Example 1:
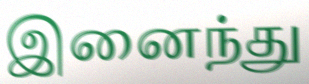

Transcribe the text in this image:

இனைந்து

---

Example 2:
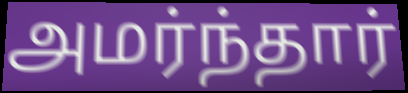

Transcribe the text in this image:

அமர்ந்தார்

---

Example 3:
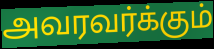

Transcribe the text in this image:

அவரவர்க்கும்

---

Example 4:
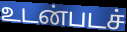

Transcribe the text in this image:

உடன்படச்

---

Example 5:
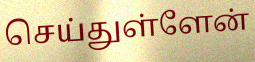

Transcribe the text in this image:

செய்துள்ளேன்